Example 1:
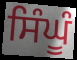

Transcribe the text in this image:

ਸਿੰਘੂੰ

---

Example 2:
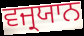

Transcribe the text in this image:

ਵਜ੍ਰਯਾਨ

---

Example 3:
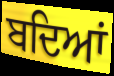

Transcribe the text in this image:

ਬਦਿਆਂ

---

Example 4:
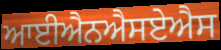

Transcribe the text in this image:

ਆਈਐਨਐਸਏਐਸ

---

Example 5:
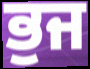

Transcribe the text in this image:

ਭੁਜ